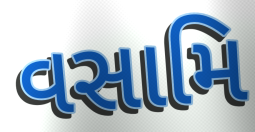
વસામિ